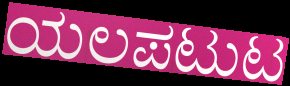
ಯಲಪಟುಟ